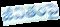
జీవితంపై